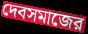
দেবসমাজের